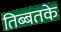
तिब्बतके